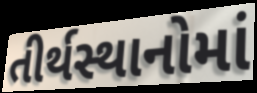
તીર્થસ્થાનોમાં